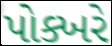
પોક્ખરે